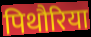
पिथौरिया